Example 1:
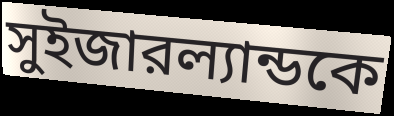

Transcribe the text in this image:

সুইজারল্যান্ডকে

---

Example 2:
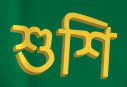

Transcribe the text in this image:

শুশি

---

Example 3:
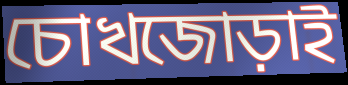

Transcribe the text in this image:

চোখজোড়াই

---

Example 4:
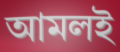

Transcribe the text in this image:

আমলই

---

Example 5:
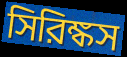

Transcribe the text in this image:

সিরিঙ্কস